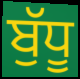
ਬੁੱਧੂ